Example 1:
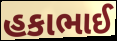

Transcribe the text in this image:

હકાભાઈ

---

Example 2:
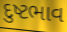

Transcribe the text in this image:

દુષ્ટભાવ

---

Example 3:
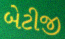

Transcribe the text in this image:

બેટીજી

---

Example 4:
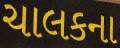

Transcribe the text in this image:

ચાલકના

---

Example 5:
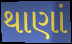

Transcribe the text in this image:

થાણાં